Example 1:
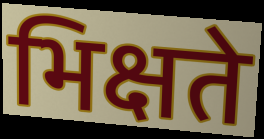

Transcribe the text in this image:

भिक्षते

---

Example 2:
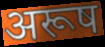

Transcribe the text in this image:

अरूष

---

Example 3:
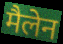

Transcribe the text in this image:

मैलेन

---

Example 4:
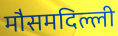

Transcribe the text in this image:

मौसमदिल्ली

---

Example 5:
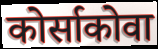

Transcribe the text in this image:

कोर्साकोवा